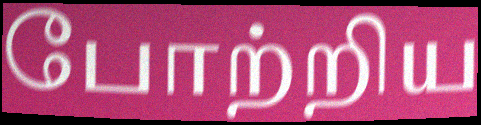
போற்றிய